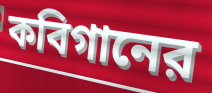
কবিগানের